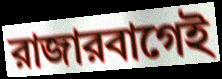
রাজারবাগেই